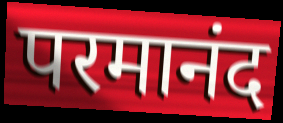
परमानंद